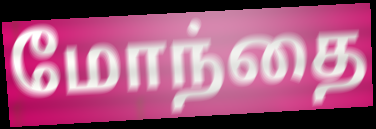
மோந்தை